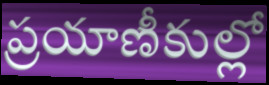
ప్రయాణీకుల్లో